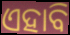
ଏହାବି